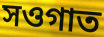
সওগাত